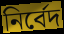
নির্বেদ